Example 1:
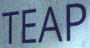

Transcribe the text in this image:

TEAP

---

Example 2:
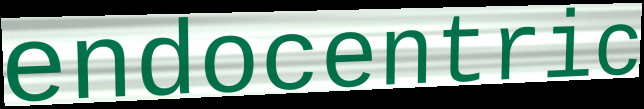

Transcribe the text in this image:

endocentric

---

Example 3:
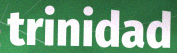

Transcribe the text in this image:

trinidad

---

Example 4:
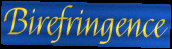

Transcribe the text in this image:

Birefringence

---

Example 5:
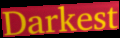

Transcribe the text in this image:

Darkest